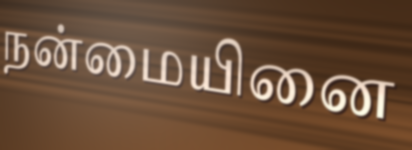
நன்மையினை